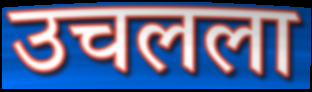
उचलला